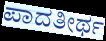
ಪಾದತೀರ್ಥ